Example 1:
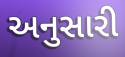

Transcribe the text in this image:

અનુસારી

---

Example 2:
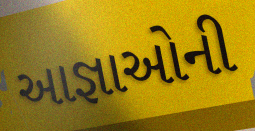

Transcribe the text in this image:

આજ્ઞાઓની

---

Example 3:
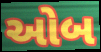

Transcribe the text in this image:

ઓબ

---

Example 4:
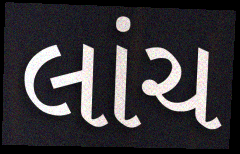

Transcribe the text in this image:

લાંચ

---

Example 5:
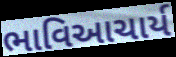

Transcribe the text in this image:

ભાવિઆચાર્ય